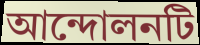
আন্দোলনটি